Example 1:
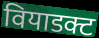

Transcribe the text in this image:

वियाडक्ट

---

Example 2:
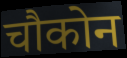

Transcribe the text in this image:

चौकोन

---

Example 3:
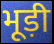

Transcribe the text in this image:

भूड़ी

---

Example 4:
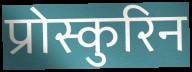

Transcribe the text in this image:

प्रोस्कुरिन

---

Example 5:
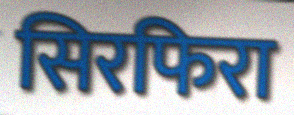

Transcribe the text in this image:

सिरफिरा